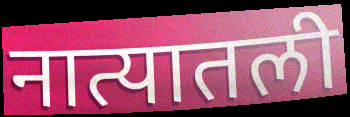
नात्यातली